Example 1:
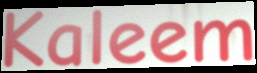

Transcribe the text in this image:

Kaleem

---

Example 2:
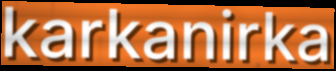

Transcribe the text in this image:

karkanirka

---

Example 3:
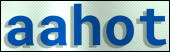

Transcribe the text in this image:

aahot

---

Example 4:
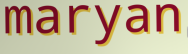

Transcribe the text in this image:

maryan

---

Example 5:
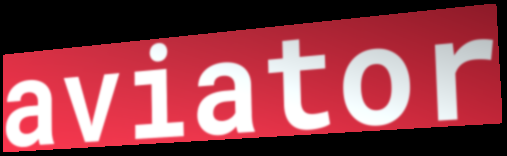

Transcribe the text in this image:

aviator